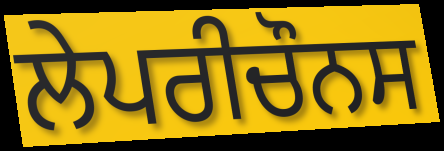
ਲੇਪਰੀਚੌਨਸ